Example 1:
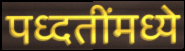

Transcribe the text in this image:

पध्दतींमध्ये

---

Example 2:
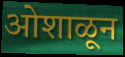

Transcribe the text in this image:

ओशाळून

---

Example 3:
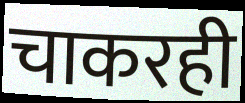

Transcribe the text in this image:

चाकरही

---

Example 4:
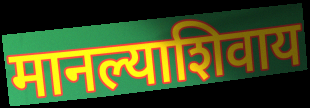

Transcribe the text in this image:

मानल्याशिवाय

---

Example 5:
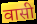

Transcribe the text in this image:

वासी